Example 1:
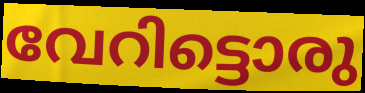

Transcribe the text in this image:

വേറിട്ടൊരു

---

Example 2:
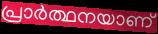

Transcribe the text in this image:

പ്രാർത്ഥനയാണ്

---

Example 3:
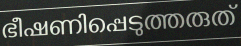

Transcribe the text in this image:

ഭീഷണിപ്പെടുത്തരുത്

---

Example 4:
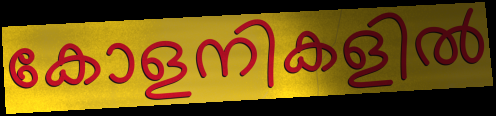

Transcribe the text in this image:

കോളനികളിൽ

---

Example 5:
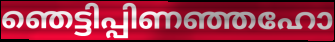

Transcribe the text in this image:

ഞെട്ടിപ്പിണഞ്ഞഹോ